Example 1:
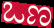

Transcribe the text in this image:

ಒಣ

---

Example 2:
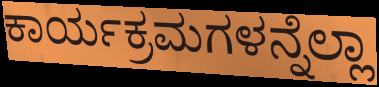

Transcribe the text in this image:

ಕಾರ್ಯಕ್ರಮಗಳನ್ನೆಲ್ಲಾ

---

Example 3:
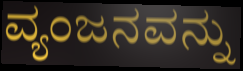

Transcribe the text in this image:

ವ್ಯಂಜನವನ್ನು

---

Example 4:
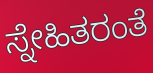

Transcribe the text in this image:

ಸ್ನೇಹಿತರಂತೆ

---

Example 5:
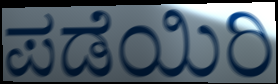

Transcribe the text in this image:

ಪಡೆಯಿರಿ